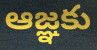
ఆజ్ఞకు